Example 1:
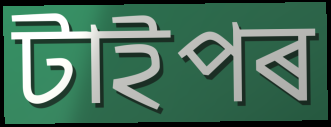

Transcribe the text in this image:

টাইপৰ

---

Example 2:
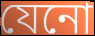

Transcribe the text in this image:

যেনো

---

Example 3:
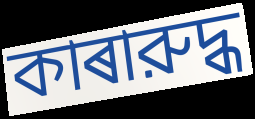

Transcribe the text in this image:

কাৰাৰুদ্ধ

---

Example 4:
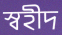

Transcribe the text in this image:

স্বহীদ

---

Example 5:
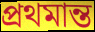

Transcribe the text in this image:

প্ৰথমান্ত